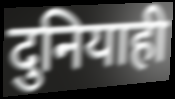
दुनियाही